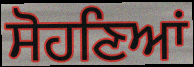
ਸੋਹਣਿਆਂ